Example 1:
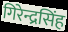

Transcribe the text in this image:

गिरेन्द्रसिंह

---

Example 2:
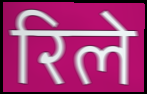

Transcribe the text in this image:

रिले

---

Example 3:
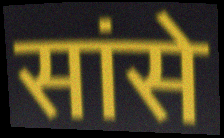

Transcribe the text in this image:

सांसे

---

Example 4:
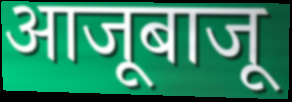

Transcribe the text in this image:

आजूबाजू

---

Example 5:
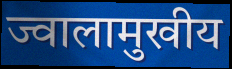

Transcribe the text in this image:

ज्वालामुखीय